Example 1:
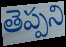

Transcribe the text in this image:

తెప్పని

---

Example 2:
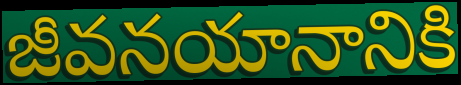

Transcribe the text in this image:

జీవనయానానికి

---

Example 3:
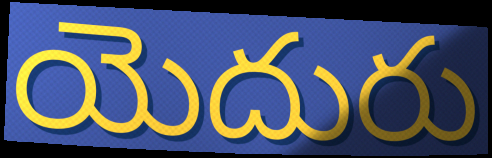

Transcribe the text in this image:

యెదురు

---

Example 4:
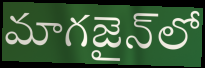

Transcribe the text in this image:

మాగజైన్‌లో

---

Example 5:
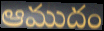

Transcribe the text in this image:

ఆముదం